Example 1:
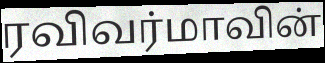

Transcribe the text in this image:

ரவிவர்மாவின்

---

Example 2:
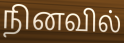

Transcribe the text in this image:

நினவில்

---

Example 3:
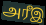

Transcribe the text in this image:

அரீஇ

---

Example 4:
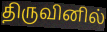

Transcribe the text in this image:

திருவினில்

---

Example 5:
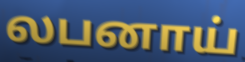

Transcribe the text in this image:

லபனாய்